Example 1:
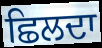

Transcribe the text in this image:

ਛਿਲਦਾ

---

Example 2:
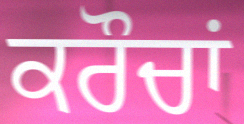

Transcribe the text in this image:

ਕਰੌਚਾਂ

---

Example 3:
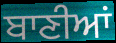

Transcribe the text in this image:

ਬਾਣੀਆਂ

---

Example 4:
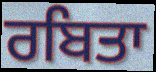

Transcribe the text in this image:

ਰਬਿਤਾ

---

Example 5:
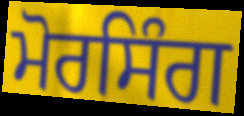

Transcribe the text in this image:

ਮੋਰਸਿੰਗ